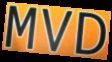
MVD